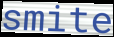
smite